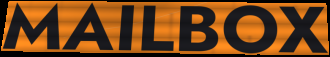
MAILBOX